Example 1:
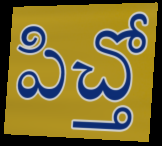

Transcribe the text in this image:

పిచ్తో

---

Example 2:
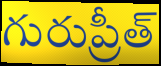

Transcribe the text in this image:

గురుప్రీత్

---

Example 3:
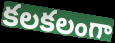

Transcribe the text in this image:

కలకలంగా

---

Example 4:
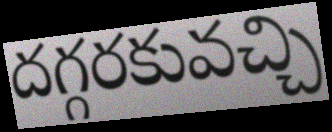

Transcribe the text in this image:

దగ్గరకువచ్చి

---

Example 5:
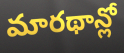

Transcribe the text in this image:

మారథాన్లో